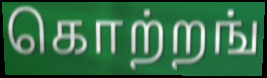
கொற்றங்